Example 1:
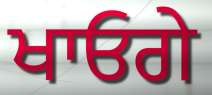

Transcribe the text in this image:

ਖਾਓਗੇ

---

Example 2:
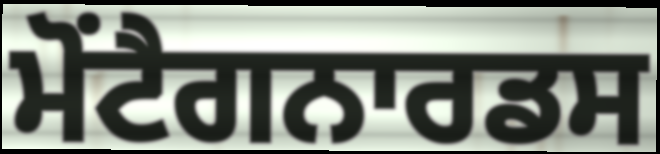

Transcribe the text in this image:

ਮੋਂਟੈਗਨਾਰਡਸ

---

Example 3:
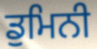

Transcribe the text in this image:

ਡੁਮਿਨੀ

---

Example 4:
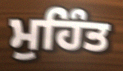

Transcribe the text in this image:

ਮੁਹਿੰਤ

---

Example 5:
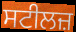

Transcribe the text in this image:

ਸਟੀਲਜ਼